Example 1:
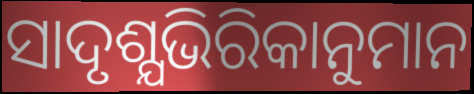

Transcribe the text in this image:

ସାଦୃଶ୍ଯଭିରିକାନୁମାନ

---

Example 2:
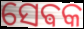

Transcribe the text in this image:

ସେଵକ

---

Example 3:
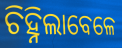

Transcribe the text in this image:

ଚିହ୍ନିଲାବେଳେ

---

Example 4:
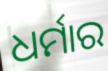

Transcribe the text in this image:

ଧର୍ମାର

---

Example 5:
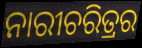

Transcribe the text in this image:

ନାରୀଚରିତ୍ରର